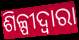
ଶିଳ୍ପୀଦ୍ୱାରା